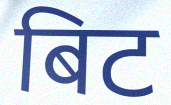
बिट